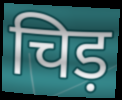
चिड़